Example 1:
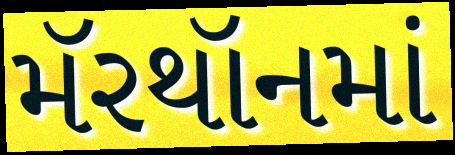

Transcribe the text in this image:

મૅરથૉનમાં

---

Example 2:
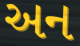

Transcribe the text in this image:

અન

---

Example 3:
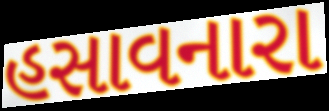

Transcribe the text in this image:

હસાવનારા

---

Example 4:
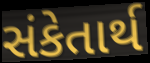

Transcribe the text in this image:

સંકેતાર્થ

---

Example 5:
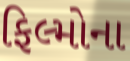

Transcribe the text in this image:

ફિલ્મોના